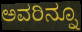
ಅವರಿನ್ನೂ